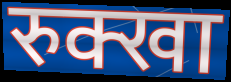
रुक्खा